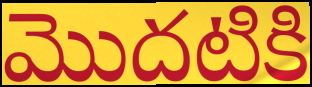
మొదటికి